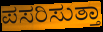
ಪಸರಿಸುತ್ತಾ